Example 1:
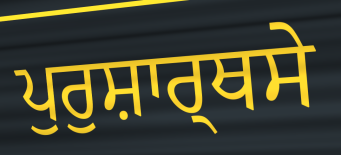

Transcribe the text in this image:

ਪੁਰੁਸ਼ਾਰ੍ਥਸੇ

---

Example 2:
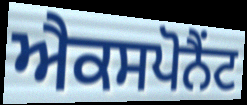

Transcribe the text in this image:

ਐਕਸਪੋਨੈਂਟ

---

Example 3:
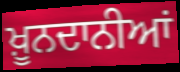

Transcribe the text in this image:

ਖ਼ੂਨਦਾਨੀਆਂ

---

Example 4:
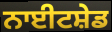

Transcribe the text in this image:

ਨਾਈਟਸ਼ੇਡ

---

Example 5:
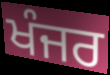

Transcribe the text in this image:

ਖੰਜਰ